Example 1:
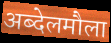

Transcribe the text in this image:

अब्देलमौला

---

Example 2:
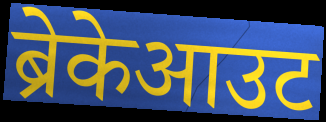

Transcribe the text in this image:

ब्रेकेआउट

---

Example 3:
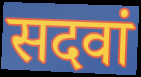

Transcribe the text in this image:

सदवां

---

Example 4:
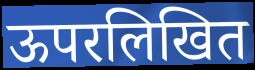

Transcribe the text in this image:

ऊपरलिखित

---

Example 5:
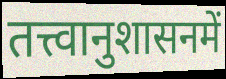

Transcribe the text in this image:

तत्त्वानुशासनमें